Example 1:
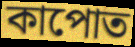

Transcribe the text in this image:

কাপোত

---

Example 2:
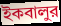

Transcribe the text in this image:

ইকবালুর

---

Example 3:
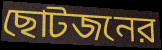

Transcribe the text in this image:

ছোটজনের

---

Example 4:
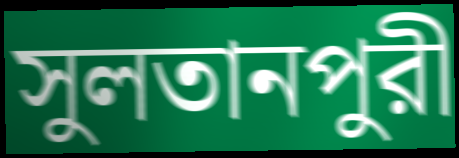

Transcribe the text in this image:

সুলতানপুরী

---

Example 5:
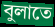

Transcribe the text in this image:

বুলাতে